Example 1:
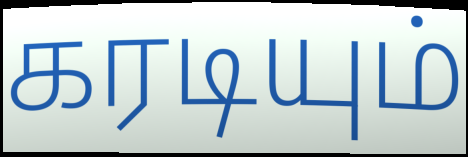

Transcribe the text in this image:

கரடியும்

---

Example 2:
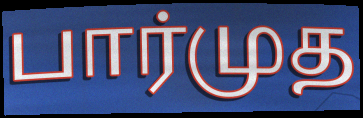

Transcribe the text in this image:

பார்முத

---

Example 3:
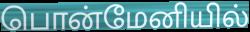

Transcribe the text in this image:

பொன்மேனியில்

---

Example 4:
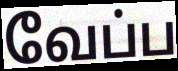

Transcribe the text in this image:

வேப்ப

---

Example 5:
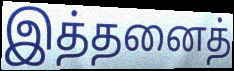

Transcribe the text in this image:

இத்தனைத்